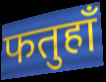
फतुहाँ